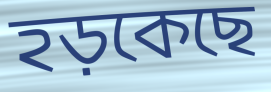
হড়কেছে